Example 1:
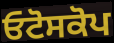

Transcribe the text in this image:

ਓਟੋਸਕੋਪ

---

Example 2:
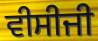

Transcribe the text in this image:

ਵੀਸੀਜੀ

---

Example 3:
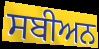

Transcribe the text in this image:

ਸਬੀਅਨ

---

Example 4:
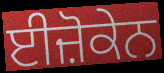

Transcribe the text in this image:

ਈਜ਼ੋਕੇਨ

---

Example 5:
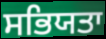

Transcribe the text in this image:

ਸਭਿਯਤਾ